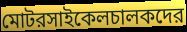
মোটরসাইকেলচালকদের